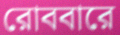
রোববারে